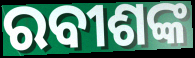
ରବୀଶଙ୍କ